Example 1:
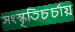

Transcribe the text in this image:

সংস্কৃতিচর্চায়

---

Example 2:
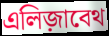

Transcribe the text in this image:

এলিজ়াবেথ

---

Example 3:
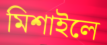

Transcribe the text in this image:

মিশাইলে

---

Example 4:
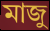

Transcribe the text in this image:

মাজু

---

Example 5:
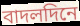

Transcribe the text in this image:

বাদলদিনে